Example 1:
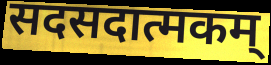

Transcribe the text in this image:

सदसदात्मकम्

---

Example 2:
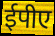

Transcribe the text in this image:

ईपीए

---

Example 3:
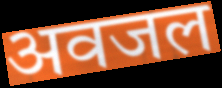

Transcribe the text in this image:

अवजल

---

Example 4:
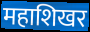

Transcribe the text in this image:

महाशिखर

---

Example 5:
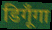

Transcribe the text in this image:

डिगूँगा